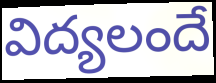
విద్యలందే